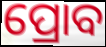
ପ୍ରୋବ